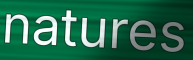
natures